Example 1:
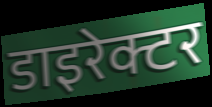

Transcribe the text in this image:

डाइरेक्टर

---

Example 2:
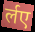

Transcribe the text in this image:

र्लए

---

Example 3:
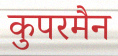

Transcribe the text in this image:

कुपरमैन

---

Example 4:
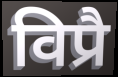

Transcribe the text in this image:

विप्रै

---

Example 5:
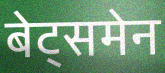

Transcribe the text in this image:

बेट्समेन